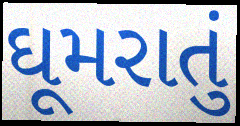
ઘૂમરાતું